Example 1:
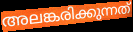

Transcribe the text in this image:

അലങ്കരിക്കുന്നത്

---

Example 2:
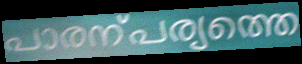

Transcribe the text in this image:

പാരന്പര്യത്തെ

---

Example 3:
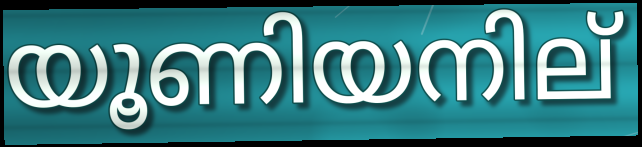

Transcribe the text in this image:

യൂണിയനില്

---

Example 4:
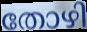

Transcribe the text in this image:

തോഴി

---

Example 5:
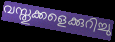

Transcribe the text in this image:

വസ്തുക്കളെക്കുറിച്ചു